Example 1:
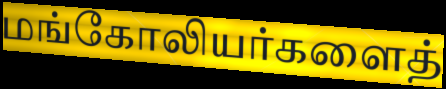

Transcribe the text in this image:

மங்கோலியர்களைத்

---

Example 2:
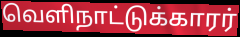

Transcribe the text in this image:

வெளிநாட்டுக்காரர்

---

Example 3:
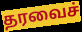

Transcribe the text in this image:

தரவைச்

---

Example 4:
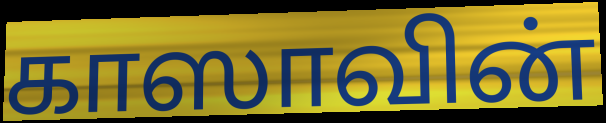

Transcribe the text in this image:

காஸாவின்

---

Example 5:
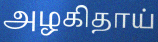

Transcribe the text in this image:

அழகிதாய்